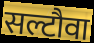
सल्टौवा